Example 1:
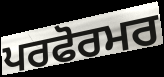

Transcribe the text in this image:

ਪਰਫੋਰਮਰ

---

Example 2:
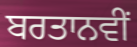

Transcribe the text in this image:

ਬਰਤਾਨਵੀਂ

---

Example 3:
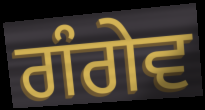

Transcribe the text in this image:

ਗੰਗੇਵ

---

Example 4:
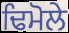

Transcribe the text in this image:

ਢਿਮੋਲੇ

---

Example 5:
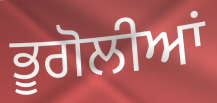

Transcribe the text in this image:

ਭੂਗੋਲੀਆਂ